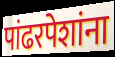
पांढरपेशांना